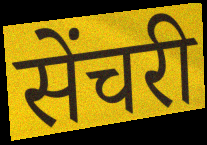
सेंचरी